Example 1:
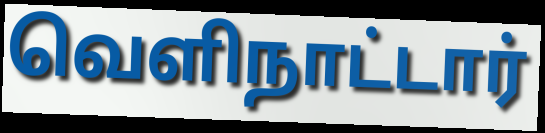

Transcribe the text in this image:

வெளிநாட்டார்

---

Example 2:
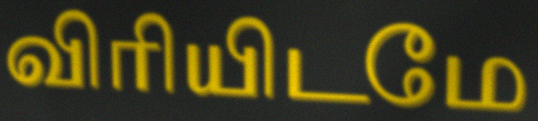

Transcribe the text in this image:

விரியிடமே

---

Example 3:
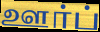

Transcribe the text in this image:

ஊர்ப்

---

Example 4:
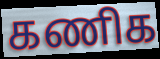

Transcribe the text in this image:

கணிக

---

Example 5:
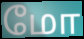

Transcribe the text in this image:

மோ